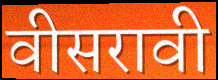
वीसरावी